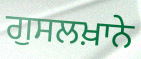
ਗੁਸਲਖ਼ਾਨੇ